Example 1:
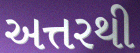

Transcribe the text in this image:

અત્તરથી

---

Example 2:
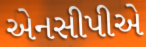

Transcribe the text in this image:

એનસીપીએ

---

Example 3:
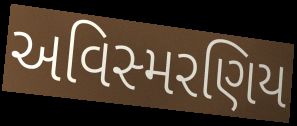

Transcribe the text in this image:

અવિસ્મરણિય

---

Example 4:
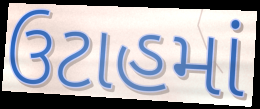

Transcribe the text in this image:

ઉટાહમાં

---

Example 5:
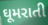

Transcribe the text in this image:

ઘૂમરાતી